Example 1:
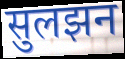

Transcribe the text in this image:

सुलझन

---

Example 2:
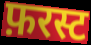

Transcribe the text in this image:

फ़रस्ट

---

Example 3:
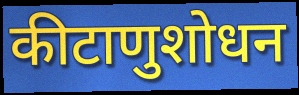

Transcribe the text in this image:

कीटाणुशोधन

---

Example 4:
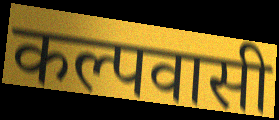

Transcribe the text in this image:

कल्पवासी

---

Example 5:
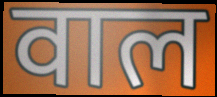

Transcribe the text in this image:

वाल